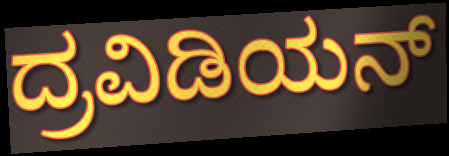
ದ್ರವಿಡಿಯನ್